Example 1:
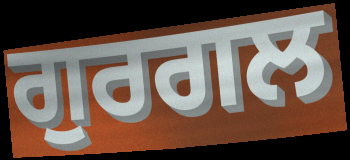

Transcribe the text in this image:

ਗੁਰਗਲ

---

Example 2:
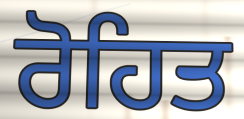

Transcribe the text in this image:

ਰੋਹਿਤ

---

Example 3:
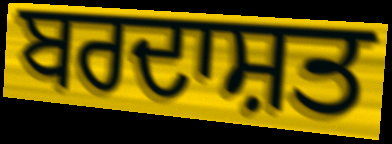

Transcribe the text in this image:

ਬਰਦਾਸ਼ਤ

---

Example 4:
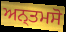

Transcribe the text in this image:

ਅਨ੍ਤਮਸੋ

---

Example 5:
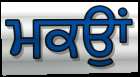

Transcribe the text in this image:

ਮਕਉਾਂ